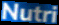
Nutri